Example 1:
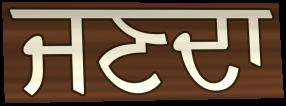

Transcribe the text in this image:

ਜਣਦਾ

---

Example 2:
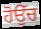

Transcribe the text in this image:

ਹੋਉੱਚ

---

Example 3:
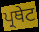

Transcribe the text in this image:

ਪ੍ਰਥੇਟ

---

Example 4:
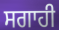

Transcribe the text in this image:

ਸਗਾਹੀ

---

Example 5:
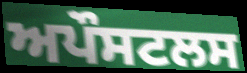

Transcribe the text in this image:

ਅਪੌਸਟਲਸ